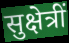
सुक्षेत्रीं